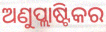
ଅଣୁପ୍ଲାଷ୍ଟିକର